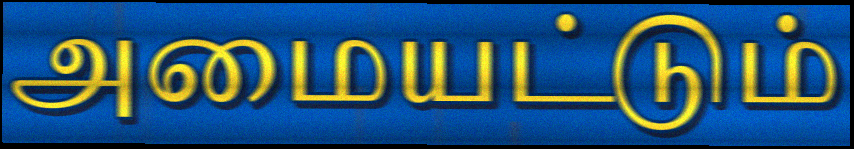
அமையட்டும்